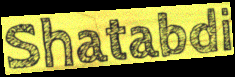
Shatabdi